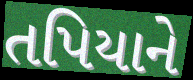
તપિયાને